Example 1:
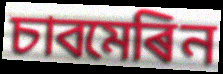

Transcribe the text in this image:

চাবমেৰিন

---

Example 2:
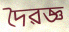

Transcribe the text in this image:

দৈৱজ্ঞ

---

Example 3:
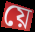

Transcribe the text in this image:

য়ে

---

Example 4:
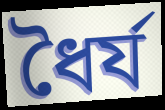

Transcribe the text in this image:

ধৈৰ্য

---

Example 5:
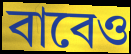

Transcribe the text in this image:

বাবেও